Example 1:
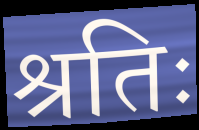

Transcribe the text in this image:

श्रतिः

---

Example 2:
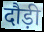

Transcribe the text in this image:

दौड़ी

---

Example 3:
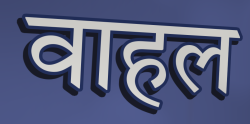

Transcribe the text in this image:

वाहल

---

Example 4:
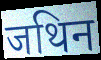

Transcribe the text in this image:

जथिन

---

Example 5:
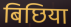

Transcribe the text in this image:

बिछिया